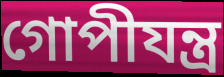
গোপীযন্ত্র